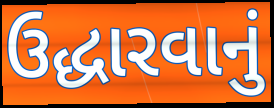
ઉદ્ધારવાનું